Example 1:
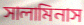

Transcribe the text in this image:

সালামিনাস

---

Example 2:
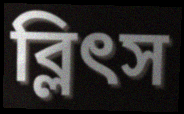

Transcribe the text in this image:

ব্লিৎস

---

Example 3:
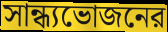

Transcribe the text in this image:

সান্ধ্যভোজনের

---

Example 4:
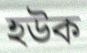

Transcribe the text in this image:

হউক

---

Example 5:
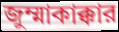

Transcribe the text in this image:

জুম্মাকাক্কার